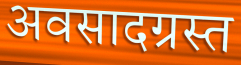
अवसादग्रस्त